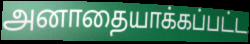
அனாதையாக்கப்பட்ட